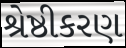
શ્રેષ્ઠીકરણ